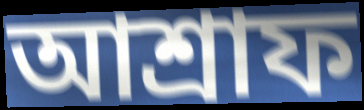
আশ্রাফ